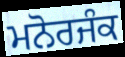
ਮਨੋਰਜੰਕ